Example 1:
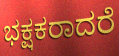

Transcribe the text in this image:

ಭಕ್ಷಕರಾದರೆ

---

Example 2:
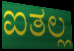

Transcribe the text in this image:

ಐತಲ್ಲ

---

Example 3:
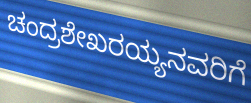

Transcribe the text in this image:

ಚಂದ್ರಶೇಖರಯ್ಯನವರಿಗೆ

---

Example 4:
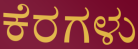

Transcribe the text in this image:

ಕೆರಗಳು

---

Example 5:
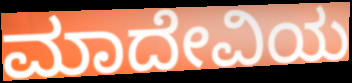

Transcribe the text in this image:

ಮಾದೇವಿಯ